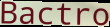
Bactro